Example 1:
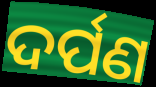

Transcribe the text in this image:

ଦର୍ପଣ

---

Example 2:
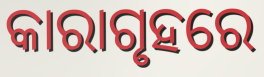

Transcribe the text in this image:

କାରାଗୃହରେ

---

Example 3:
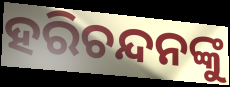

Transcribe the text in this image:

ହରିଚନ୍ଦନଙ୍କୁ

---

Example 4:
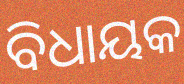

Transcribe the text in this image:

ବିଧାୟକ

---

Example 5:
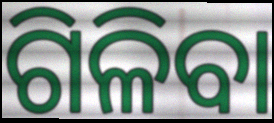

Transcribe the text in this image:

ଗିଳିବା